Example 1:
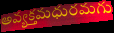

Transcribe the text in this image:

అవ్యక్తమధురమగు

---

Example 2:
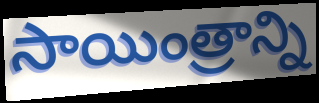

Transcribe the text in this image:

సాయింత్రాన్ని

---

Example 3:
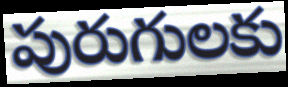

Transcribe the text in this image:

పురుగులకు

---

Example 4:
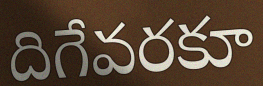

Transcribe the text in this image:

దిగేవరకూ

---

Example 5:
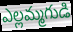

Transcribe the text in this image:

ఎల్లమ్మగుడి